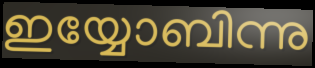
ഇയ്യോബിന്നു